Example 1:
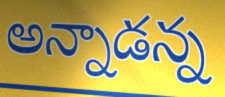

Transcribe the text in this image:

అన్నాడన్న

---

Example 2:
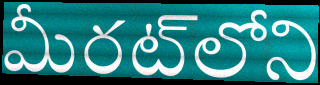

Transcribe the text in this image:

మీరట్‌లోని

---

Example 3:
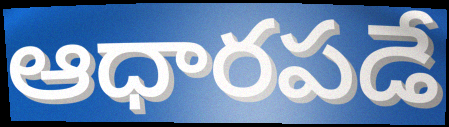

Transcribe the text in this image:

ఆధారపడే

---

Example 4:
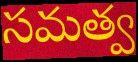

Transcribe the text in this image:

సమత్వ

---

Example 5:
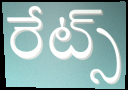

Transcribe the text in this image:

రేట్స్